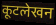
कूटलेखन